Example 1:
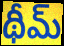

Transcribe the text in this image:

థీమ్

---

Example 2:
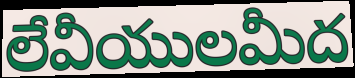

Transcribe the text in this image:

లేవీయులమీద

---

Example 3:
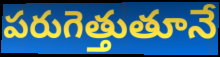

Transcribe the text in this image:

పరుగెత్తుతూనే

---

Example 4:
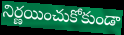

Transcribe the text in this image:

నిర్ణయించుకోకుండా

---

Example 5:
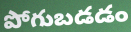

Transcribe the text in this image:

పోగుబడడం